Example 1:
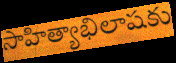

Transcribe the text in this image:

సాహిత్యాభిలాషకు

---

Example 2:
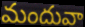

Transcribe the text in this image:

మందువా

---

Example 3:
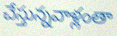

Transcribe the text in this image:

చేస్తున్నవాళ్లంతా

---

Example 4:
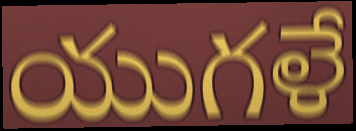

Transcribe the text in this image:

యుగళే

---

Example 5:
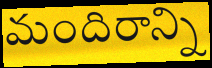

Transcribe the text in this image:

మందిరాన్ని